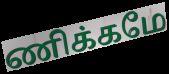
ணிக்கமே